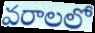
వరాలలో